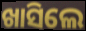
ଖାସିଲେ